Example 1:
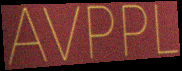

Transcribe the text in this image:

AVPPL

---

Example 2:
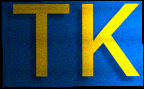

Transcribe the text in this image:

TK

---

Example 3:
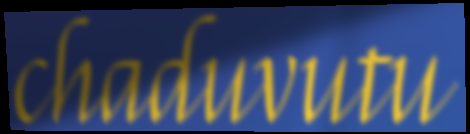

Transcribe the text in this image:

chaduvutu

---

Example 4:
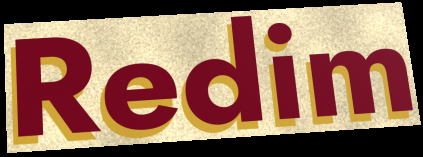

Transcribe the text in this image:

Redim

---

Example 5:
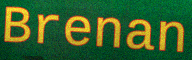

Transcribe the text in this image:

Brenan